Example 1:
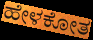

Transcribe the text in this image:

ಹೇಳಕೋತ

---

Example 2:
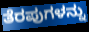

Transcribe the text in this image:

ತೆರಪುಗಳನ್ನು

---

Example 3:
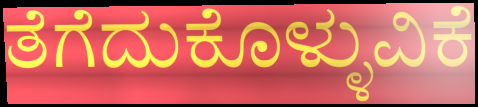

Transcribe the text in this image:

ತೆಗೆದುಕೊಳ್ಳುವಿಕೆ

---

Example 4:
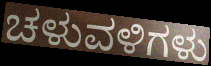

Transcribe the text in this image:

ಚಳುವಳಿಗಳು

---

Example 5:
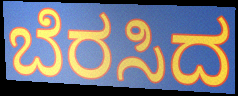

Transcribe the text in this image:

ಬೆರಸಿದ